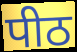
पीठ